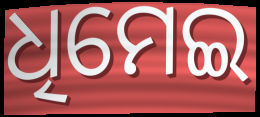
ଧିମେଇ